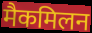
मैकमिलन